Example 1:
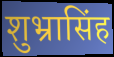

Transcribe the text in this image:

शुभ्रासिंह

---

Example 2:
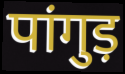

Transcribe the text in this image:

पांगुड़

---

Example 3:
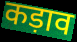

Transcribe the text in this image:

कड़ाव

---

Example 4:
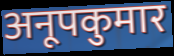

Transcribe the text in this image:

अनूपकुमार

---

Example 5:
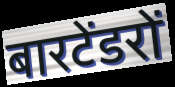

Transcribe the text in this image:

बारटेंडरों